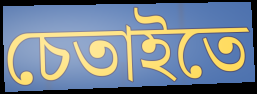
চেতাইতে